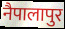
नैपालापुर